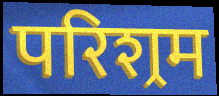
परिश्रम